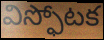
విస్ఫోటక